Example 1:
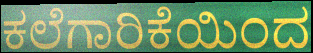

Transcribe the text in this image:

ಕಲೆಗಾರಿಕೆಯಿಂದ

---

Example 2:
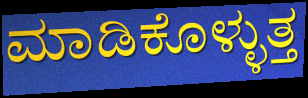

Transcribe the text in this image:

ಮಾಡಿಕೊಳ್ಳುತ್ತ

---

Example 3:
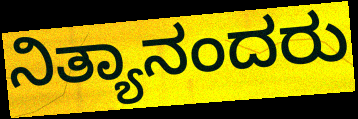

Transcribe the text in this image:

ನಿತ್ಯಾನಂದರು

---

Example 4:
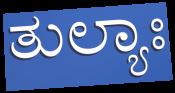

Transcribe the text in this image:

ತುಲ್ಯಾಃ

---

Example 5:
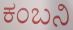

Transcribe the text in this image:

ಕಂಬನಿ